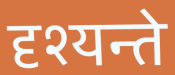
दृश्यन्ते